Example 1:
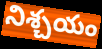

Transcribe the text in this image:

నిశ్చయం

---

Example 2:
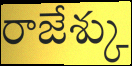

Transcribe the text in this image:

రాజేశ్కు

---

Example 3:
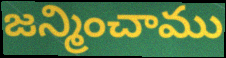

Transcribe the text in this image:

జన్మించాము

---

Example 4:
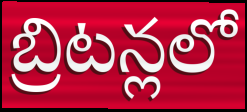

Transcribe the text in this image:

బ్రిటన్లలో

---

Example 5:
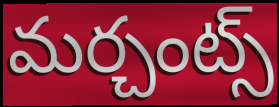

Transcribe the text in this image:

మర్చంట్స్